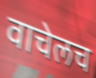
वाचेलच